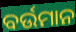
ବର୍ଉମାନ